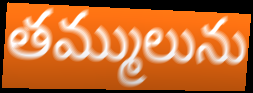
తమ్ములును